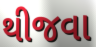
થીજવા